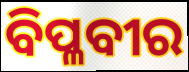
ବିପ୍ଳବୀର